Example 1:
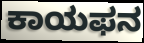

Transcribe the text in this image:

ಕಾಯಫನ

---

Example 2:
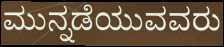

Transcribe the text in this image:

ಮುನ್ನಡೆಯುವವರು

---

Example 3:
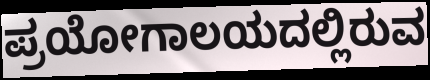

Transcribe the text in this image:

ಪ್ರಯೋಗಾಲಯದಲ್ಲಿರುವ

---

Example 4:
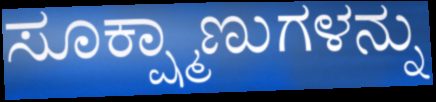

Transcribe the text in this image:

ಸೂಕ್ಷ್ಮಾಣುಗಳನ್ನು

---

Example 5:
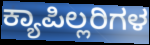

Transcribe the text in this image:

ಕ್ಯಾಪಿಲ್ಲರಿಗಳ